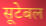
सूटेबल